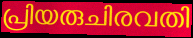
പ്രിയരുചിരവതി